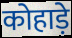
कोहाड़े